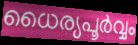
ധൈര്യപൂർവ്വം